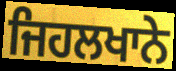
ਜਿਹਲਖਾਨੇ